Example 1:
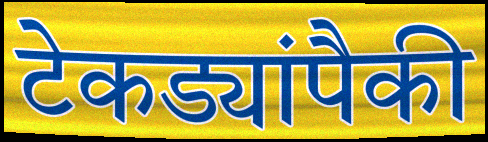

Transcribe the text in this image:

टेकड्यांपैकी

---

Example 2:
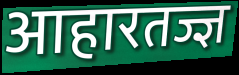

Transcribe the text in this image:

आहारतज्ज्ञ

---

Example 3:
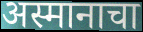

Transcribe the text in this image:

अस्मानाचा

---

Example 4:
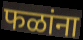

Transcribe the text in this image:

फळांना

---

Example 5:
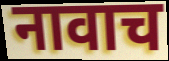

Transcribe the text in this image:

नावाच